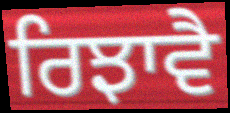
ਰਿਝਾਵੈ